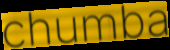
chumba